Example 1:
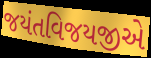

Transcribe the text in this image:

જયંતવિજયજીએ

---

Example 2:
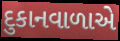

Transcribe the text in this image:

દુકાનવાળાએ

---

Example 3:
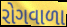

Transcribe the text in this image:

રોગવાળા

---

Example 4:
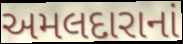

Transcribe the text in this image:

અમલદારાનાં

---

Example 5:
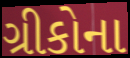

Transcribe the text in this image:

ગ્રીકોના